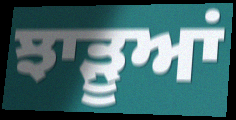
ਝਾੜੂਆਂ